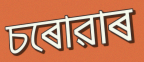
চৰোৱাৰ